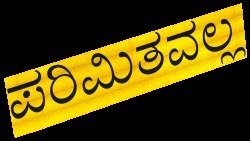
ಪರಿಮಿತವಲ್ಲ